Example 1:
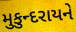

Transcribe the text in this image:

મુકુન્દરાયને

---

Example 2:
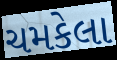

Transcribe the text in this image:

ચમકેલા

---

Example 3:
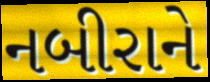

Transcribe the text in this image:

નબીરાને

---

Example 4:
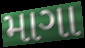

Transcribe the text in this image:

માગા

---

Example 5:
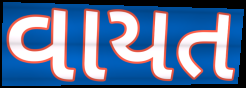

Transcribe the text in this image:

વાયત